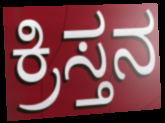
ಕ್ರಿಸ್ತನ